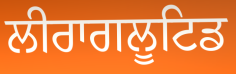
ਲੀਰਾਗਲੂਟਿਡ